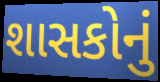
શાસકોનું